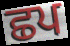
ਛਪ